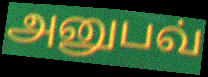
அனுபவ்